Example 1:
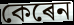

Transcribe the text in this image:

কেৰেন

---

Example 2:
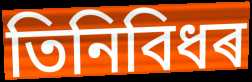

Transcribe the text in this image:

তিনিবিধৰ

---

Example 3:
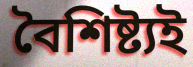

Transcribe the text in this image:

বৈশিষ্ট্যই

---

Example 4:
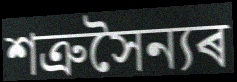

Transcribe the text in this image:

শত্ৰুসৈন্যৰ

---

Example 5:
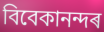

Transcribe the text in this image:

বিবেকানন্দৰ